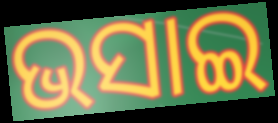
ଭସାଇ